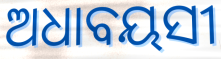
ଅଧାବୟସୀ